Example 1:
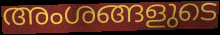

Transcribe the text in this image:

അംശങ്ങളുടെ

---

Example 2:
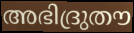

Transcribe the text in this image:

അഭിദ്രുതൗ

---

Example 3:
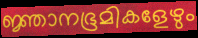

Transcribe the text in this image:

ജ്ഞാനഭൂമികളേഴും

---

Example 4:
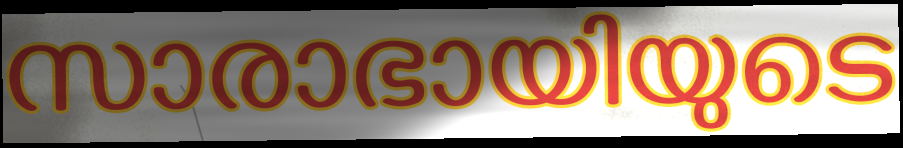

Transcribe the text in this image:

സാരാഭായിയുടെ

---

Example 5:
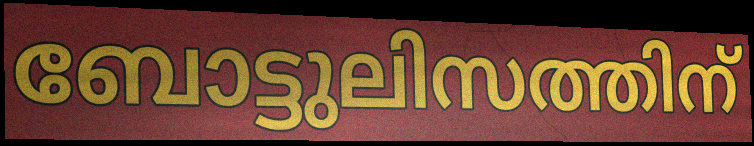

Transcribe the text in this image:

ബോട്ടുലിസത്തിന്